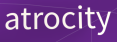
atrocity